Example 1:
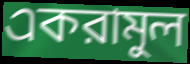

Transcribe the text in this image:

একরামুল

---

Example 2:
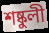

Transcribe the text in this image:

শষ্কুলী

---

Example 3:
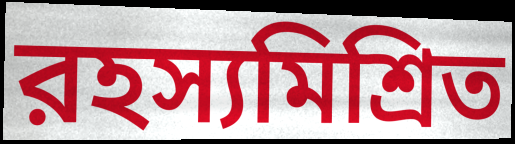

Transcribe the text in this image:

রহস্যমিশ্রিত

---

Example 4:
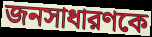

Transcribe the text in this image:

জনসাধারণকে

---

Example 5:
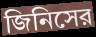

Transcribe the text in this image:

জিনিসের